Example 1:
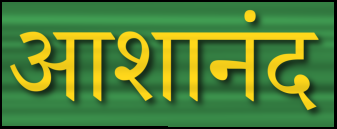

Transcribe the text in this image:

आशानंद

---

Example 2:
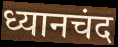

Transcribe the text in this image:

ध्यानचंद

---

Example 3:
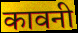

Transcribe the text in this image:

कावनी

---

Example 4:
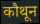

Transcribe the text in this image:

कौथून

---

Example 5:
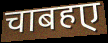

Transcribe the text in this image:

चाबहए